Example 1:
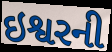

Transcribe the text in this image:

ઇશ્વરની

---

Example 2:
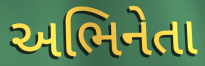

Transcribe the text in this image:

અભિનેતા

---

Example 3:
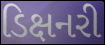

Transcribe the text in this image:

ડિક્ષનરી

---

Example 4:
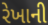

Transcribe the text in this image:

રેખાની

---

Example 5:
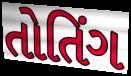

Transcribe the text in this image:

તોતિંગ